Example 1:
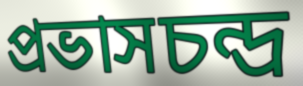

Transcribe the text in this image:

প্রভাসচন্দ্র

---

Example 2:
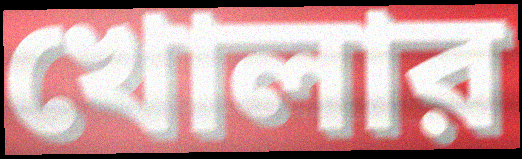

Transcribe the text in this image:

খোলার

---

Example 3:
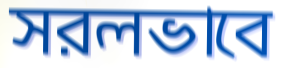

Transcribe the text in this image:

সরলভাবে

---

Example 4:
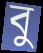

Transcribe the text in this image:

বু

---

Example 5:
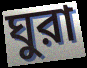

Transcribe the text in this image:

ঘুরা